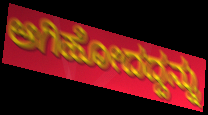
ಆಗಿಹೋದದ್ದನ್ನು